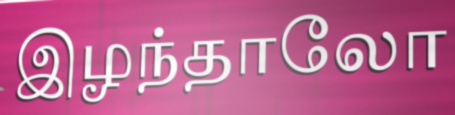
இழந்தாலோ